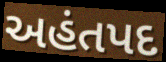
અહંતપદ